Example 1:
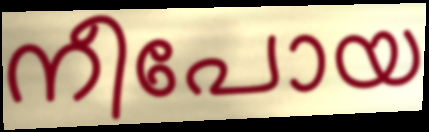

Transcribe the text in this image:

നീപോയ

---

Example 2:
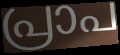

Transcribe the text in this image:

പ്രാപ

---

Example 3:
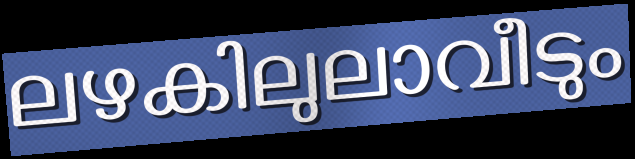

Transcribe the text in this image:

ലഴകിലുലാവീടും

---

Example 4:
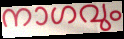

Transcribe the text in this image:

നാഗവും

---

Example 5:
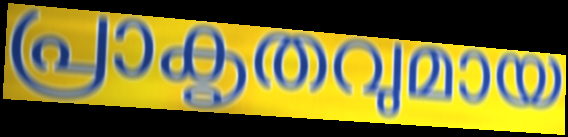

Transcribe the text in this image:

പ്രാകൃതവുമായ